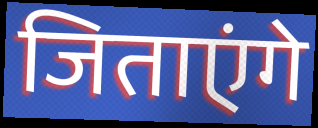
जिताएंगे